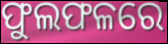
ଫୁଲଫଳରେ